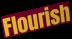
Flourish